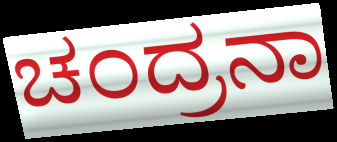
ಚಂದ್ರನಾ